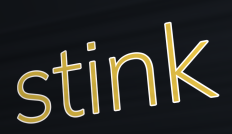
stink